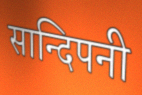
सान्दिपनी